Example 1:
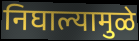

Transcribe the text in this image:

निघाल्यामुळे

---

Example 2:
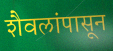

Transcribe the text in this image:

शैवलांपासून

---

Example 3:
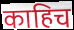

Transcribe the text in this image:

काहिच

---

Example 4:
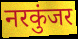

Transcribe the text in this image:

नरकुंजर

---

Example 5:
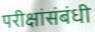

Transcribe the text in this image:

परीक्षांसंबंधी